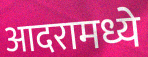
आदरामध्ये